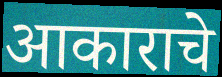
आकाराचे